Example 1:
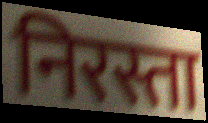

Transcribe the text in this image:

निरस्ता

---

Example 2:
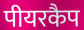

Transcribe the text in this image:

पीयरकैप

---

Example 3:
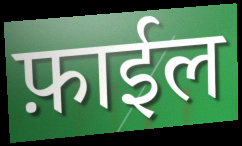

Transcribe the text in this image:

फ़ाईल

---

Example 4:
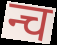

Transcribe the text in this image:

न्च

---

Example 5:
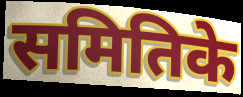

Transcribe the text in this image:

समितिके